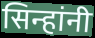
सिन्हांनी